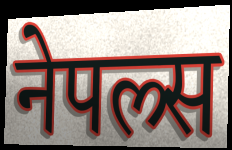
नेपल्स